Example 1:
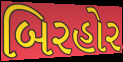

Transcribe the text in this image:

બિરહોર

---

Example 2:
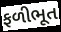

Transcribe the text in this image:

ફળીભૂત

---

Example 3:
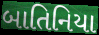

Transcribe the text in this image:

બાતિનિયા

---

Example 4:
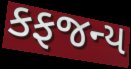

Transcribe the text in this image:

કફજન્ય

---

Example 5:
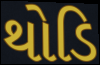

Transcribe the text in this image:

થોડિ